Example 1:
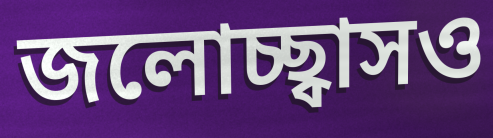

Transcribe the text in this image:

জলোচ্ছ্বাসও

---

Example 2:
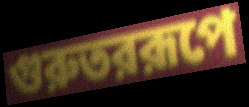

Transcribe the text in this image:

গুরুতররূপে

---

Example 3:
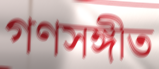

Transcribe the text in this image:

গণসঙ্গীত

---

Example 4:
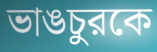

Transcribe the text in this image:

ভাঙচুরকে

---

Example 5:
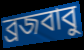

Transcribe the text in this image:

ব্রজবাবু